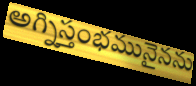
అగ్నిస్తంభమునైనను